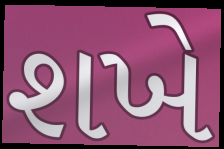
શખે